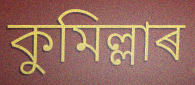
কুমিল্লাৰ